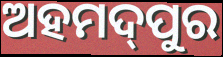
ଅହମଦ୍‌ପୁର